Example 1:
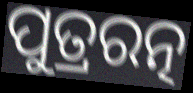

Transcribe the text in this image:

ପୁତ୍ରରତ୍ନ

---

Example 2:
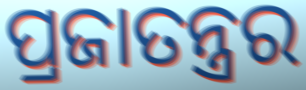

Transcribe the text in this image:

ପ୍ରଜାତନ୍ତ୍ରର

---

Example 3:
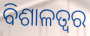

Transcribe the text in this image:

ବିଶାଳତ୍ୱର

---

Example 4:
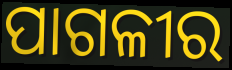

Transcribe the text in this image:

ପାଗଳୀର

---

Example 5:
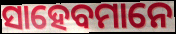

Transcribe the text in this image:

ସାହେବମାନେ